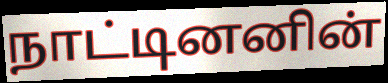
நாட்டினனின்